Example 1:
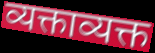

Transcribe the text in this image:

व्यक्ताव्यक्त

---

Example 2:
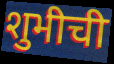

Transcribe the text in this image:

शुभीची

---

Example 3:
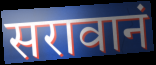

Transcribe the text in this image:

सरावानं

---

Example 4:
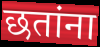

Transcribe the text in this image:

छतांना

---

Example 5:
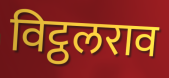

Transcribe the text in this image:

विट्ठलराव